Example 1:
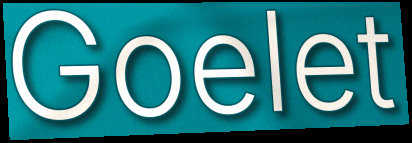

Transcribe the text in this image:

Goelet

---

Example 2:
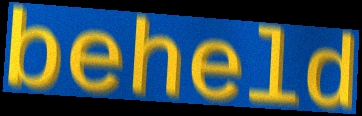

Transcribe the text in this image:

beheld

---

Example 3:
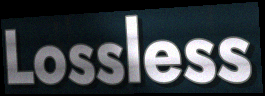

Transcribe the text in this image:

Lossless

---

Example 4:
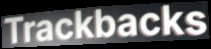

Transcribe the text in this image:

Trackbacks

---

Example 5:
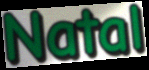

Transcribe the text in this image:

Natal